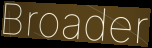
Broader